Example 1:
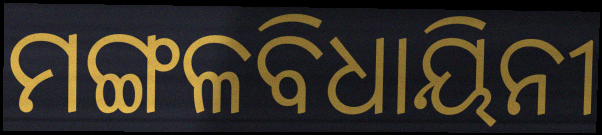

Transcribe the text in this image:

ମଙ୍ଗଳବିଧାୟିନୀ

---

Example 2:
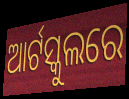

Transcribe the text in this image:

ଆର୍ଟସ୍କୁଲରେ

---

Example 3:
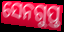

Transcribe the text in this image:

ସେନଗୁପ୍ତ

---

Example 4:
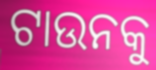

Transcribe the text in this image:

ଟାଉନକୁ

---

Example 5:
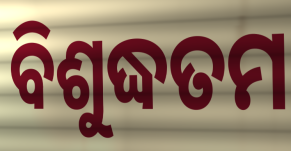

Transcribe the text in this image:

ବିଶୁଦ୍ଧତମ